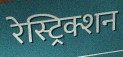
रेस्ट्रिक्शन